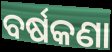
ବର୍ଷକଣା